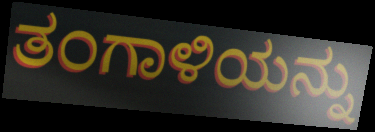
ತಂಗಾಳಿಯನ್ನು